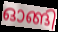
ഓങ്ങി